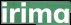
irima